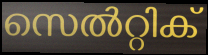
സെൽറ്റിക്